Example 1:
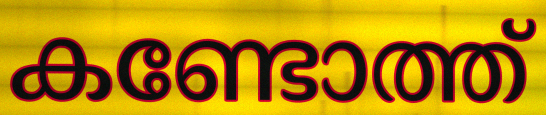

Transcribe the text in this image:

കണ്ടോത്ത്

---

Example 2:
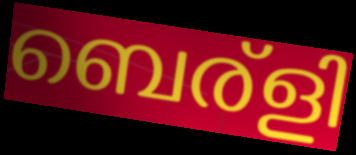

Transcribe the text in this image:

ബെര്ളി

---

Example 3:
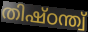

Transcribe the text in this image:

തിഷ്ഠന്ത്വ്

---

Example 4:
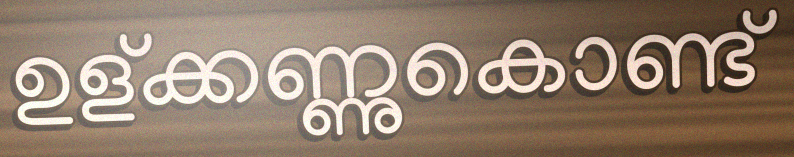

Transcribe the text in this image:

ഉള്ക്കണ്ണുകൊണ്ട്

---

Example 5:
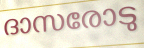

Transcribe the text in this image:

ദാസരോടു